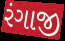
રંગાજી